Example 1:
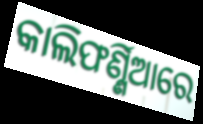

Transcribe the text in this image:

କାଲିଫର୍ଣ୍ଣିଆରେ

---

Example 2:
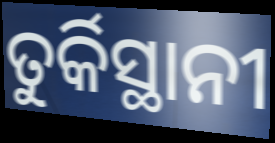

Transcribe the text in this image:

ତୁର୍କିସ୍ଥାନୀ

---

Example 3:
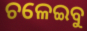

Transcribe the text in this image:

ଚଳେଇବୁ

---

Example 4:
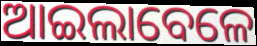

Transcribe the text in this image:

ଆଇଲାବେଳେ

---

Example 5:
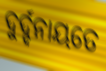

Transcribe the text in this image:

ଦୁର୍ଦ୍ଦନାୟତେ